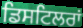
ਡਿਸਟਿਲਰਾਂ